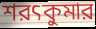
শরৎকুমার